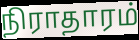
நிராதாரம்